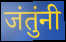
जंतुंनी